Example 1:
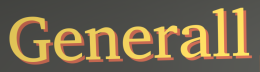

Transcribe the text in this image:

Generall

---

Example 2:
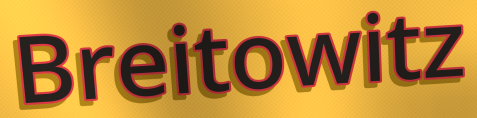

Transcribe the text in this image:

Breitowitz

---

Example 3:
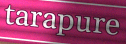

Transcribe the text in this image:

tarapure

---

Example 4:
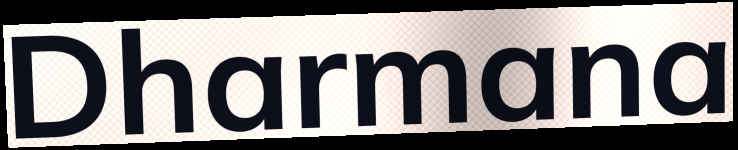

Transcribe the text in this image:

Dharmana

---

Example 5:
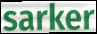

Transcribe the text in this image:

sarker